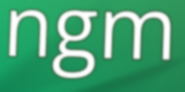
ngm